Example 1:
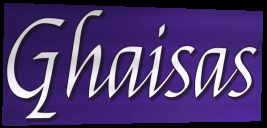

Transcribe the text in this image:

Ghaisas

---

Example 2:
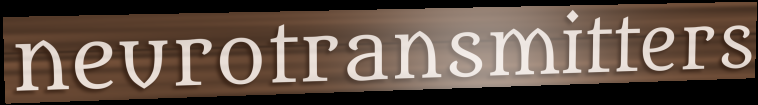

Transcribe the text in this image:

neurotransmitters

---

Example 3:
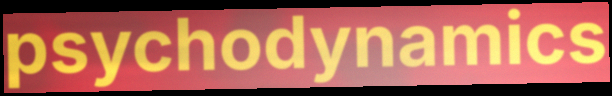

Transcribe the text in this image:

psychodynamics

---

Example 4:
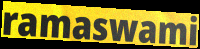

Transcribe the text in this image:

ramaswami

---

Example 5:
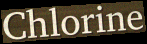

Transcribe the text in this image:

Chlorine